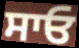
ਸਾਓ